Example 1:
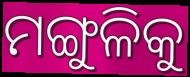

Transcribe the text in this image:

ମଙ୍ଗୁଳିକୁ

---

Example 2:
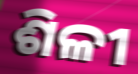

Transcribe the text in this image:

ଶିଳୀ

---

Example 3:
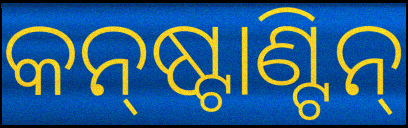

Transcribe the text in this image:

କନ୍‌ଷ୍ଟାଣ୍ଟିନ୍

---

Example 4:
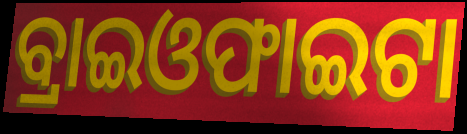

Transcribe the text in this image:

ବ୍ରାଇଓଫାଇଟା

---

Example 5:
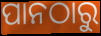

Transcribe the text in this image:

ପାନଠାରୁ